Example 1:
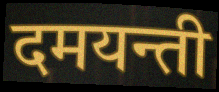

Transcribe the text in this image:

दमयन्ती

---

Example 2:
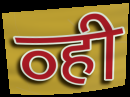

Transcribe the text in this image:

व्‍ही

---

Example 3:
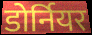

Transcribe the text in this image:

डोर्नियर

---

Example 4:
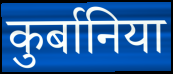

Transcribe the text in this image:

कुर्बानिया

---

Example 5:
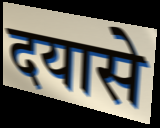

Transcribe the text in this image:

दयासे